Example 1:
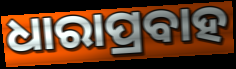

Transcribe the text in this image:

ଧାରାପ୍ରବାହ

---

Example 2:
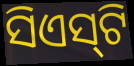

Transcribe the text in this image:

ସିଏସ୍‌ଟି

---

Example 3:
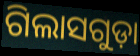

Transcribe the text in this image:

ଗିଲାସଗୁଡ଼ା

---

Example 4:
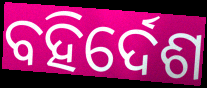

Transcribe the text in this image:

ବହିର୍ଦେଶ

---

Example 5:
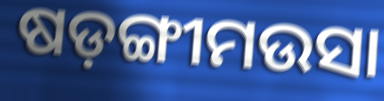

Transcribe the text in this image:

ଷଡ଼ଙ୍ଗୀମଉସା